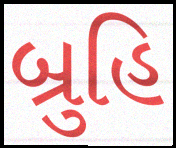
બ્રુહિ